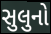
સુલુનો